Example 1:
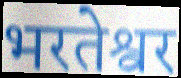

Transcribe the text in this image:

भरतेश्वर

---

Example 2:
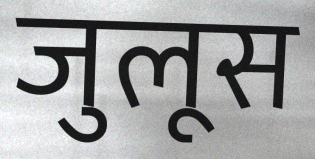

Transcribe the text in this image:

जुलूस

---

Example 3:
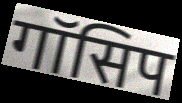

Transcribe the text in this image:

गॉसिप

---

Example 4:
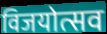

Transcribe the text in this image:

विजयोत्सव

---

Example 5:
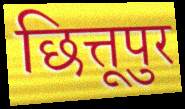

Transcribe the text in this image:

छित्तूपुर